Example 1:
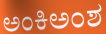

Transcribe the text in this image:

ಅಂಕಿಅಂಶ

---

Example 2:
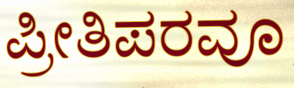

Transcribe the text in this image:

ಪ್ರೀತಿಪರವೂ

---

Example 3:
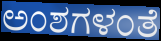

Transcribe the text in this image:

ಅಂಶಗಳಂತೆ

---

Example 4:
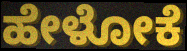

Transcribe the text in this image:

ಹೇಳೋಕೆ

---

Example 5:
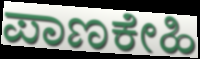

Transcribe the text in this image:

ಪಾಣಕೇಹಿ